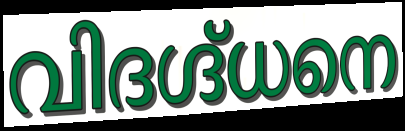
വിദഗ്ദ്ധനെ